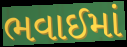
ભવાઈમાં